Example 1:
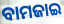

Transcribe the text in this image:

ବାମଜାଇ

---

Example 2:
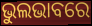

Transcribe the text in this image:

ଭୁଲଭାବରେ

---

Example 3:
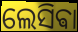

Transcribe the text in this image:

ଲେସିଵା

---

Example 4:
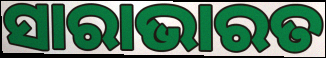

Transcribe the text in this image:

ସାରାଭାରତ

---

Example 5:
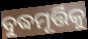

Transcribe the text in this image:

ବୁଦ୍ଧମୂର୍ତ୍ତିକୁ